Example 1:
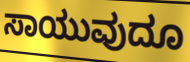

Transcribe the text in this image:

ಸಾಯುವುದೂ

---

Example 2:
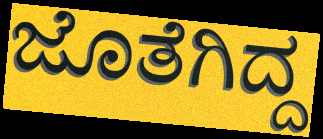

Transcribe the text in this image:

ಜೊತೆಗಿದ್ದ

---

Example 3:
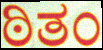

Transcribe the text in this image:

ಠಿತಂ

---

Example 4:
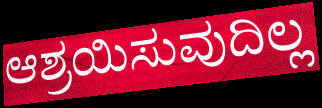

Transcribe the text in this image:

ಆಶ್ರಯಿಸುವುದಿಲ್ಲ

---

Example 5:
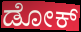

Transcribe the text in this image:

ಡೋಕ್